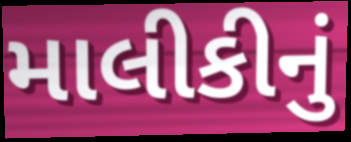
માલીકીનું